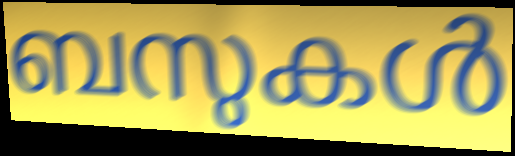
ബസുകൾ